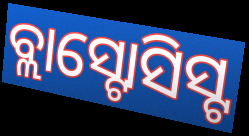
ବ୍ଲାସ୍ଟୋସିସ୍ଟ